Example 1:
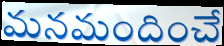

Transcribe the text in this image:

మనమందించే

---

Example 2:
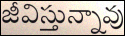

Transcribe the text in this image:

జీవిస్తున్నావు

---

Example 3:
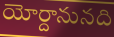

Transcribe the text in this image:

యోర్దానునది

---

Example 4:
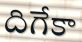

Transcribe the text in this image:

దిగేకా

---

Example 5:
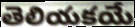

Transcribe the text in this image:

తెలియకయే